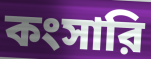
কংসারি